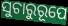
ସୁଚାରୁରୂପେ